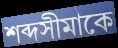
শব্দসীমাকে